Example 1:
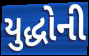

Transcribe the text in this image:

યુદ્ધોની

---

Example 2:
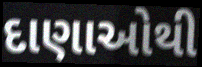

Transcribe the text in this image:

દાણાઓથી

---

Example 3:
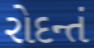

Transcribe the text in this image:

રોદન્તં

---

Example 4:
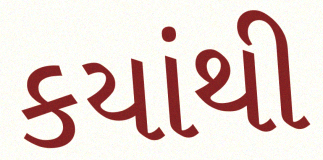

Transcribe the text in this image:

કયાંથી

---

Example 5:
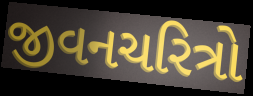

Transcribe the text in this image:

જીવનચરિત્રો